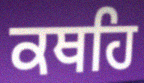
ਕਥਹਿ